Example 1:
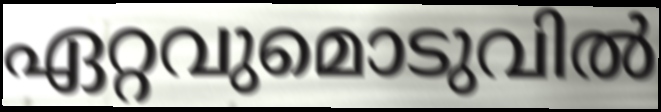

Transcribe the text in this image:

ഏറ്റവുമൊടുവിൽ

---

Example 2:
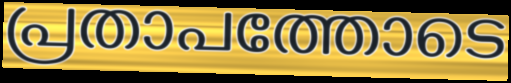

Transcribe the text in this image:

പ്രതാപത്തോടെ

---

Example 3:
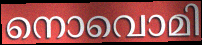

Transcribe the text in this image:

നൊവൊമി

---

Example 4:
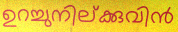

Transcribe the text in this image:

ഉറച്ചുനില്ക്കുവിൻ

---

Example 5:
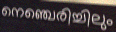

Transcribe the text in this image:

നെഞ്ചെരിച്ചിലും